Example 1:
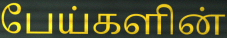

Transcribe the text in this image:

பேய்களின்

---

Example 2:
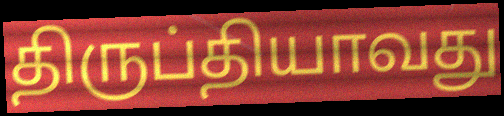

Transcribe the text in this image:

திருப்தியாவது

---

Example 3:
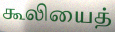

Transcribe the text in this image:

கூலியைத்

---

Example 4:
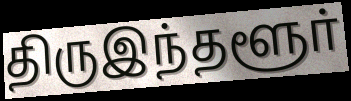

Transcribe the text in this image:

திருஇந்தளூர்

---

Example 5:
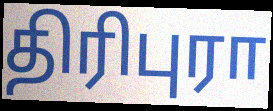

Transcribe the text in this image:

திரிபுரா